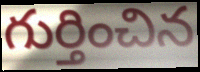
గుర్తించిన